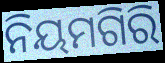
ନିୟମଗିରି